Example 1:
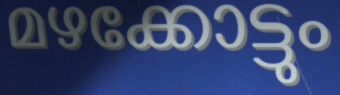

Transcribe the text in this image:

മഴക്കോട്ടും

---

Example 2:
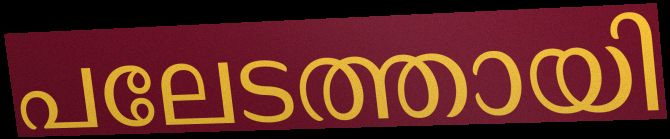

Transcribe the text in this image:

പലേടത്തായി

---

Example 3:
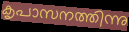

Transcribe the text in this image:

കൃപാസനത്തിന്നു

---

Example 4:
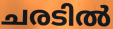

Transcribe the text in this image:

ചരടിൽ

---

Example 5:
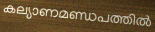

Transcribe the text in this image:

കല്യാണമണ്ഡപത്തിൽ